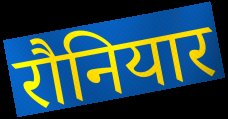
रौनियार